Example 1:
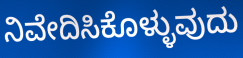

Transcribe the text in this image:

ನಿವೇದಿಸಿಕೊಳ್ಳುವುದು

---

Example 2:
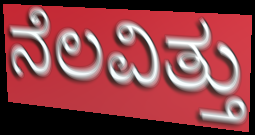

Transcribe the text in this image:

ನೆಲವಿತ್ತು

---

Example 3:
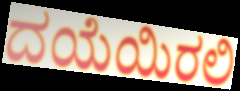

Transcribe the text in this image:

ದಯೆಯಿರಲಿ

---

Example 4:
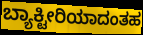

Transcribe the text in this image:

ಬ್ಯಾಕ್ಟೀರಿಯಾದಂತಹ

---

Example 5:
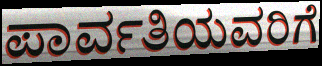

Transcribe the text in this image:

ಪಾರ್ವತಿಯವರಿಗೆ